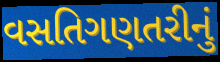
વસતિગણતરીનું